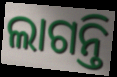
ଲାଗନ୍ତି